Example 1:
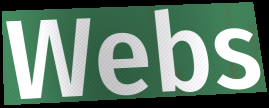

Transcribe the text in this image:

Webs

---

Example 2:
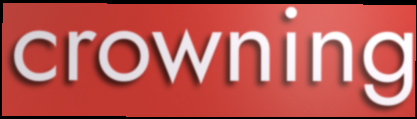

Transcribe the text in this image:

crowning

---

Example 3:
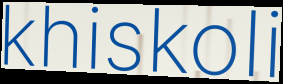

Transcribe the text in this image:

khiskoli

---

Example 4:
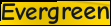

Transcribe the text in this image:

Evergreen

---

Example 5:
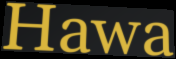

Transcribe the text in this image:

Hawa